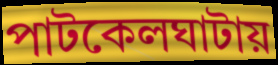
পাটকেলঘাটায়